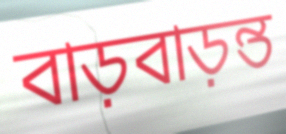
বাড়বাড়ন্ত